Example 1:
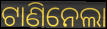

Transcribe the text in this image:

ଟାଣିନେଲା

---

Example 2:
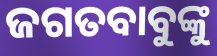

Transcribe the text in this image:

ଜଗତବାବୁଙ୍କୁ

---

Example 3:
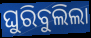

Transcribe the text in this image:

ଘୁରିବୁଲିଲା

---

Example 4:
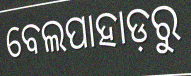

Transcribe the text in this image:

ବେଲପାହାଡ଼ରୁ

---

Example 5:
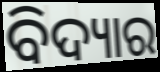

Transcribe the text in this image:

ବିଦ୍ୟାର